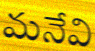
మనేవి